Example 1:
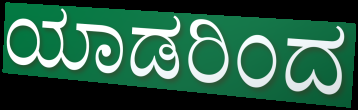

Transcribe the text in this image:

ಯಾಡರಿಂದ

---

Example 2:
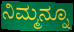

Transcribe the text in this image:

ನಿಮ್ಮನ್ನೂ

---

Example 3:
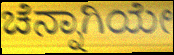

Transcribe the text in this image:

ಚೆನ್ನಾಗಿಯೇ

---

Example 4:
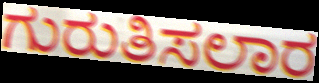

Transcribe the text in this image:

ಗುರುತಿಸಲಾರ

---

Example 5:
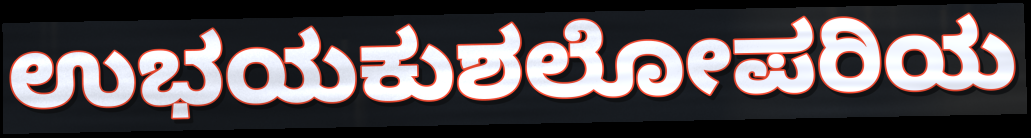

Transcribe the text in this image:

ಉಭಯಕುಶಲೋಪರಿಯ